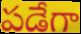
పడేగా